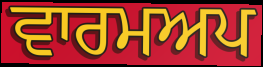
ਵਾਰਮਅਪ